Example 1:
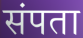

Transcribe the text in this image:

संपता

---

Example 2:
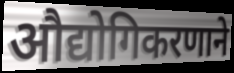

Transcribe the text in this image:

औद्योगिकरणाने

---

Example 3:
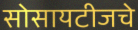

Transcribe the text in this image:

सोसायटीजचे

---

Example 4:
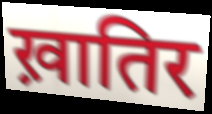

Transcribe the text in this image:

ख़ातिर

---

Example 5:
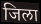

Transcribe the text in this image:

जिला